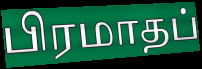
பிரமாதப்